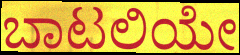
ಬಾಟಲಿಯೇ